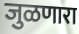
जुळणारा